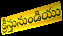
క్రీస్తునుండియు